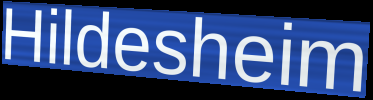
Hildesheim